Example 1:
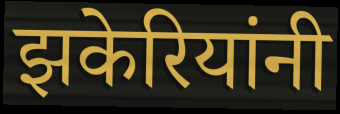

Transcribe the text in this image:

झकेरियांनी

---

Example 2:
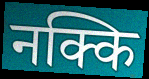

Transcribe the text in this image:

नक्कि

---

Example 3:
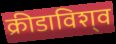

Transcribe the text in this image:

क्रीडाविश्व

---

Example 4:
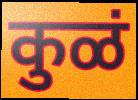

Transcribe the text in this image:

कुळं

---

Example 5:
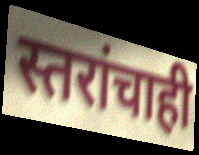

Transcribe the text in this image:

स्तरांचाही